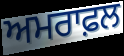
ਅਮਰਾਫ਼ਲ